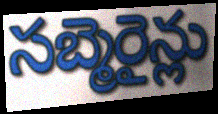
సబ్మెరైన్లు